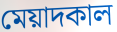
মেয়াদকাল